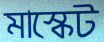
মাস্কেট